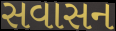
સવાસન